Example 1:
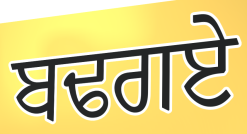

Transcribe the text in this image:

ਬਢਗਏ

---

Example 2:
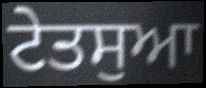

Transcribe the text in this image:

ਟੇਤਸੁਆ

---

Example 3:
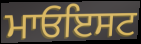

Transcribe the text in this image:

ਮਾਓਇਸਟ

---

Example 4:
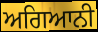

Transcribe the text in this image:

ਅਗਿਆਨੀ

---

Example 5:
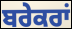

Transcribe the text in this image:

ਬਰੇਕਰਾਂ